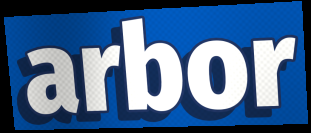
arbor